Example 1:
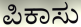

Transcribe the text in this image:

ಪಿಕಾಸು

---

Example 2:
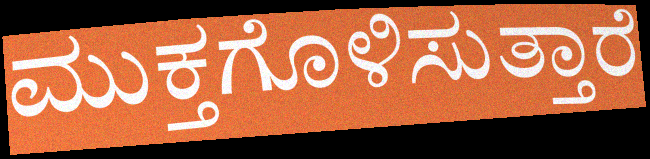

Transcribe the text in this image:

ಮುಕ್ತಗೊಳಿಸುತ್ತಾರೆ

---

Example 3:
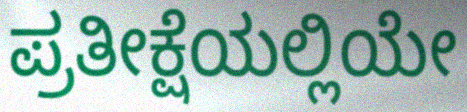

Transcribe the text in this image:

ಪ್ರತೀಕ್ಷೆಯಲ್ಲಿಯೇ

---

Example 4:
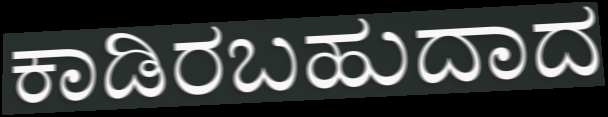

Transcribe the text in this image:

ಕಾಡಿರಬಹುದಾದ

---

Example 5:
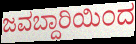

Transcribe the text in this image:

ಜವಬ್ದಾರಿಯಿಂದ